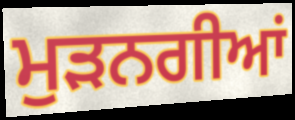
ਮੁੜਨਗੀਆਂ